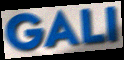
GALI